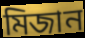
মিজান